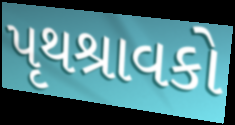
પૃથશ્રાવકો